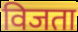
विजता